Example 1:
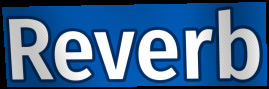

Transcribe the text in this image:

Reverb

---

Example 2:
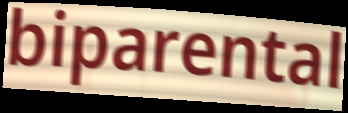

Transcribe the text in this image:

biparental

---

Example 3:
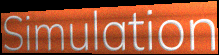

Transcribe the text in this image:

Simulation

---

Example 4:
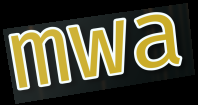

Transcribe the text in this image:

mwa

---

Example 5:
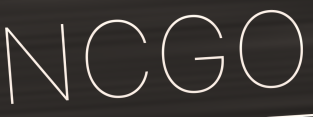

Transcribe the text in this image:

NCGO